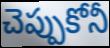
చెప్పుకోనీ